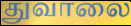
துவாலை